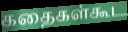
கதைகள்கூட